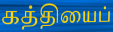
கத்தியைப்